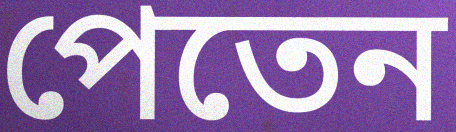
পেতেন